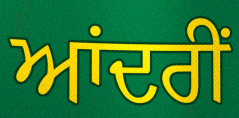
ਆਂਦਰੀਂ